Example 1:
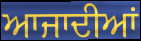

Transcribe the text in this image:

ਆਜਾਦੀਆਂ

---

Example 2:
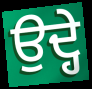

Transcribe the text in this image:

ਉਦ੍ਹੇ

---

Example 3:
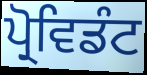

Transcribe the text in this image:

ਪ੍ਰੋਵਿਡੰਟ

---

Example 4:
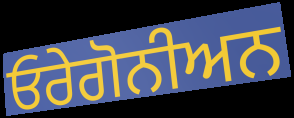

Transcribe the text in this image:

ਓਰੇਗੋਨੀਅਨ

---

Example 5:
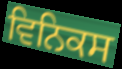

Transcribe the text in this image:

ਵਿਨਿਕਸ